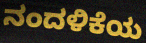
ನಂದಳಿಕೆಯ